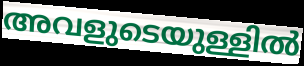
അവളുടെയുള്ളിൽ